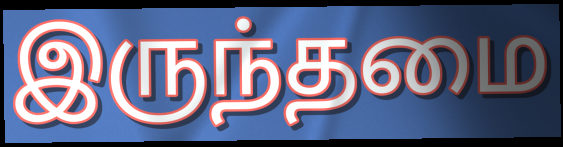
இருந்தமை